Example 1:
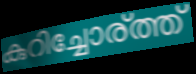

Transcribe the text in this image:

കുറിച്ചോര്ത്ത്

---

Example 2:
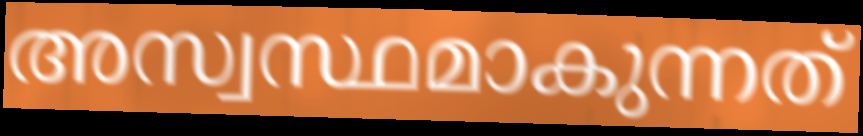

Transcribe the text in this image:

അസ്വസ്ഥമാകുന്നത്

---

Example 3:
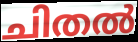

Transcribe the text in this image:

ചിതൽ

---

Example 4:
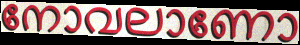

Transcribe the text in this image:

നോവലാണോ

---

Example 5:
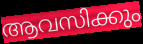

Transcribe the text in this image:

ആവസിക്കും